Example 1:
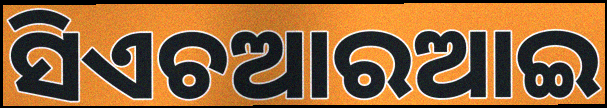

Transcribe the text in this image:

ସିଏଚଆରଆଇ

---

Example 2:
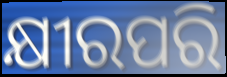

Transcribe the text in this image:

କ୍ଷୀରପରି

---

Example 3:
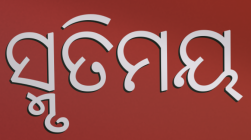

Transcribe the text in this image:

ସ୍ମୃତିମୟ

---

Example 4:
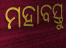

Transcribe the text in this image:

ମହାବସ୍ତୁ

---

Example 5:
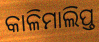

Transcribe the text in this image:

କାଳିମାଲିପ୍ତ